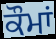
ਕੌਮਾਂ